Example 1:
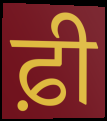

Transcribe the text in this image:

ਫ਼ੀ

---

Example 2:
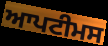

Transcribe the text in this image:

ਆਪਟੀਮਸ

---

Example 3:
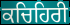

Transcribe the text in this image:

ਕਚਿਹਿਰੀ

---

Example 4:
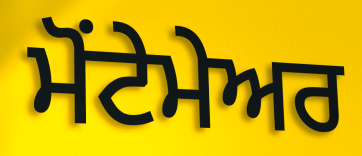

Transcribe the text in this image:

ਮੋਂਟੇਮੇਅਰ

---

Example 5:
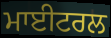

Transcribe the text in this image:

ਮਾਈਟਰਲ